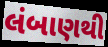
લંબાણથી